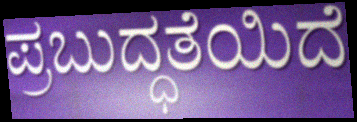
ಪ್ರಬುದ್ಧತೆಯಿದೆ